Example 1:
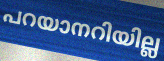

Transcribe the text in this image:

പറയാനറിയില്ല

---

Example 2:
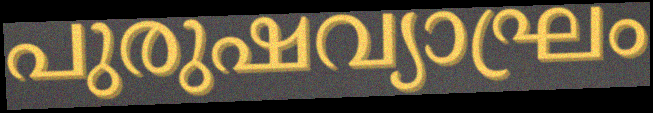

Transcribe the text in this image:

പുരുഷവ്യാഘ്രം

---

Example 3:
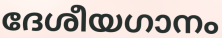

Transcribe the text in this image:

ദേശീയഗാനം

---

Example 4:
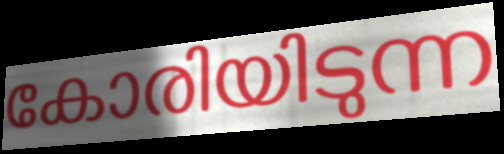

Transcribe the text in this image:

കോരിയിടുന്ന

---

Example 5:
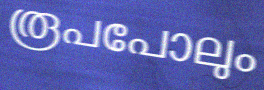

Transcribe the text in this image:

രൂപപോലും